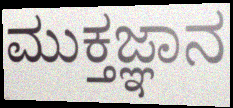
ಮುಕ್ತಜ್ಞಾನ